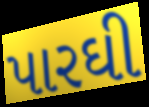
પારઘી